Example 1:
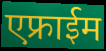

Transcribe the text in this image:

एफ्राईम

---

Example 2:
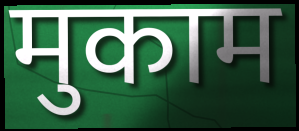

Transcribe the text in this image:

मुकाम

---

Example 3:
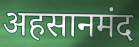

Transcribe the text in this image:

अहसानमंद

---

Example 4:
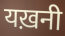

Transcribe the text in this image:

यख़नी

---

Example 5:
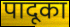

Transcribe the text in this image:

पादूका